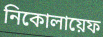
নিকোলায়েফ